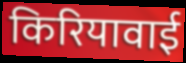
किरियावाई